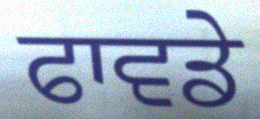
ਫਾਵਡੇ